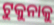
ଟୁକୁନାକୁ